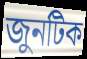
জুনটিক